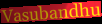
Vasubandhu